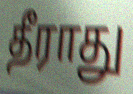
தீராது